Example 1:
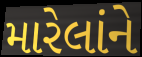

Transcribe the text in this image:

મારેલાંને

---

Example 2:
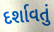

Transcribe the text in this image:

દર્શાવતું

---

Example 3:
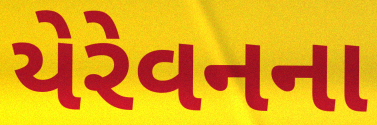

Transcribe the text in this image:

યેરેવનના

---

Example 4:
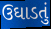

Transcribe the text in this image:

ઉઘાડતું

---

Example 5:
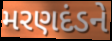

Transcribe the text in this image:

મરણદંડને